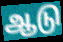
ஆடு